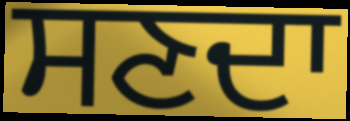
ਸਣਦਾ